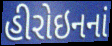
હીરોઇનનાં